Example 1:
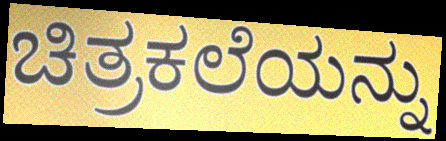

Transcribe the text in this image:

ಚಿತ್ರಕಲೆಯನ್ನು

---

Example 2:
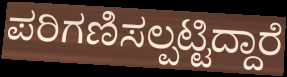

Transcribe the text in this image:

ಪರಿಗಣಿಸಲ್ಪಟ್ಟಿದ್ದಾರೆ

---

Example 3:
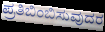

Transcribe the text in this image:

ಪ್ರತಿಬಿಂಬಿಸುವುದರ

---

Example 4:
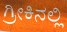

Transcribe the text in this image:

ಗ್ರೀಕಿನಲ್ಲಿ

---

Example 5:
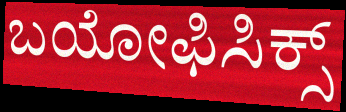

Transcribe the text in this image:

ಬಯೋಫಿಸಿಕ್ಸ್